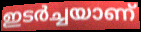
ഇടർച്ചയാണ്